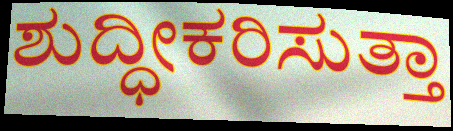
ಶುದ್ಧೀಕರಿಸುತ್ತಾ